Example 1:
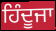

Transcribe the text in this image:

ਹਿੰਦੂਜਾ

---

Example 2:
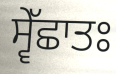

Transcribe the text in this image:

ਸ੍ਵੇੱਛਾਤਃ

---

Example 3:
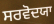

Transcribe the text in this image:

ਸਰਵੋਦਯਾ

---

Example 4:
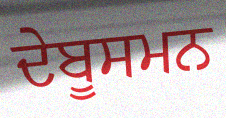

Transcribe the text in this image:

ਦੇਬੂਸਮਨ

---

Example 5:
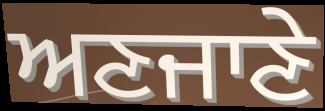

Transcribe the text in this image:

ਅਣਜਾਣੇ